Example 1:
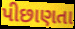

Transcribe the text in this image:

પીછાણતા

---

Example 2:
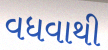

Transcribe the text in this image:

વધવાથી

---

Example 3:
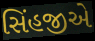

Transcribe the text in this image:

સિંહજીએ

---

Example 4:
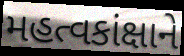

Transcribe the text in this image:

મહત્વકાંક્ષાને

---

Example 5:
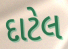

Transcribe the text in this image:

દાટેલ